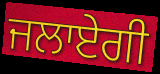
ਜਲਾਏਗੀ